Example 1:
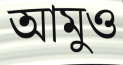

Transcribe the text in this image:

আমুও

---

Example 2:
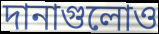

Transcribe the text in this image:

দানাগুলোও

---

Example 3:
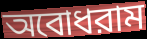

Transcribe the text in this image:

অবোধরাম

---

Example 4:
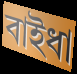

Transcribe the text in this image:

বাইধা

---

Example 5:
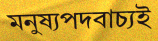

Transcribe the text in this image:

মনুষ্যপদবাচ্যই